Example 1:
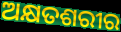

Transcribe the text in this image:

ଅକ୍ଷତଶରୀର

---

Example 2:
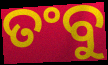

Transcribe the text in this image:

ତଂବୁ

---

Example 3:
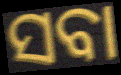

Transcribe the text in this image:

ସବା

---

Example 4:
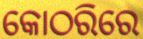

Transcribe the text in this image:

କୋଠରିରେ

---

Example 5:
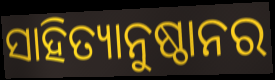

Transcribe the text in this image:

ସାହିତ୍ୟାନୁଷ୍ଠାନର